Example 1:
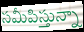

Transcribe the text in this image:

సమీపిస్తున్నా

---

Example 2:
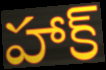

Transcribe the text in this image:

హాక్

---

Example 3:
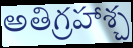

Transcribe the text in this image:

అతిగ్రహాశ్చ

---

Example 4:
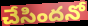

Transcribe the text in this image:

చేసిందనో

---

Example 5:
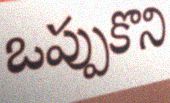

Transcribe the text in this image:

ఒప్పుకొని